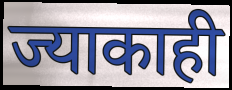
ज्याकाही